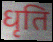
धृति